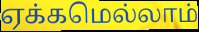
ஏக்கமெல்லாம்